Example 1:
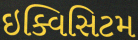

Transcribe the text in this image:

ઇક્વિસિટમ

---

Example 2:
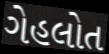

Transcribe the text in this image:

ગેહલોત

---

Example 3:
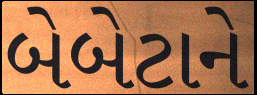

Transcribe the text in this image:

બેબેટાને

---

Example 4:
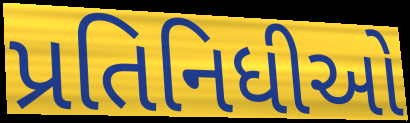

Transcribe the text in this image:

પ્રતિનિધીઓ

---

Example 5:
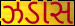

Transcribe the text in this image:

ઝડાસ